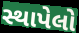
સ્થાપેલો